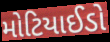
મોટિયાઈડો